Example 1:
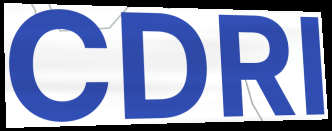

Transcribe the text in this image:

CDRI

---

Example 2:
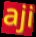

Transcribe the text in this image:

aji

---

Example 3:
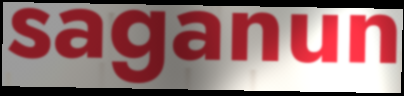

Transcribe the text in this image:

saganun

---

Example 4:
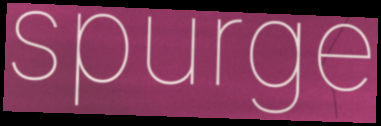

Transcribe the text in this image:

spurge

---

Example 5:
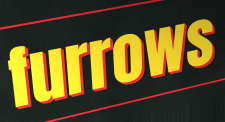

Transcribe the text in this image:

furrows